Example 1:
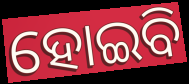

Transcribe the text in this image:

ହୋଇବି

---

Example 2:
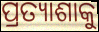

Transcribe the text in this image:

ପ୍ରତ୍ୟାଶାକୁ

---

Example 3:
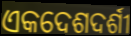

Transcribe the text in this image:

ଏକଦେଶଦର୍ଶୀ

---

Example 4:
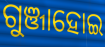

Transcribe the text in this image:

ଗୁଞ୍ଜାହୋଇ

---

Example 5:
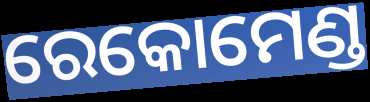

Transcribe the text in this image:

ରେକୋମେଣ୍ଡ